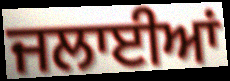
ਜਲਾਈਆਂ